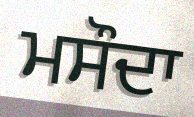
ਮਸੌਦਾ